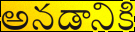
అనడానికి